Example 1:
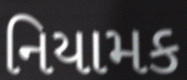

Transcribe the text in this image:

નિયામક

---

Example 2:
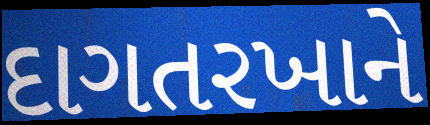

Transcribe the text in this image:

દાગતરખાને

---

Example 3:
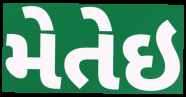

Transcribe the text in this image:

મેતેઇ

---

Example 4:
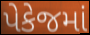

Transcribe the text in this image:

પેકેજમાં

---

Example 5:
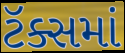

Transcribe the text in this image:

ટૅક્સમાં